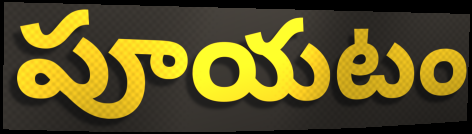
పూయటం